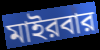
মাইরবার